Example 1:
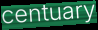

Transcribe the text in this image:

centuary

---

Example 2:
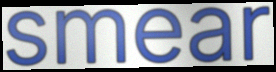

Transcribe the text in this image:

smear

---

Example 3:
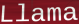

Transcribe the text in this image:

Llama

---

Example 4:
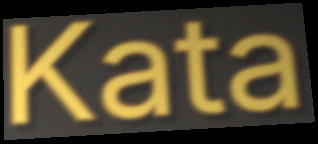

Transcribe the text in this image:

Kata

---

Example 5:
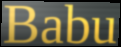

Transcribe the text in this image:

Babu